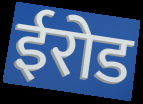
ईरोड